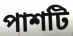
পাশটি